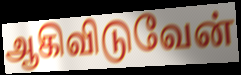
ஆகிவிடுவேன்